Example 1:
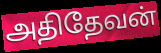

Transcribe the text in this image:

அதிதேவன்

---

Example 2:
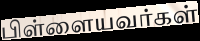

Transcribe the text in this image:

பிள்ளையவர்கள்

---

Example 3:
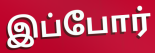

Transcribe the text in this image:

இப்போர்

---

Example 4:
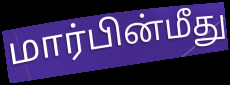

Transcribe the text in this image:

மார்பின்மீது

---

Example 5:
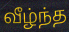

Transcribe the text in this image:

வீழ்ந்த